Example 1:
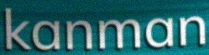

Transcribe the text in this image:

kanman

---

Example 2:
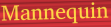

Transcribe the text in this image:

Mannequin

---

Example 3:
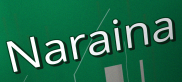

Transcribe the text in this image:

Naraina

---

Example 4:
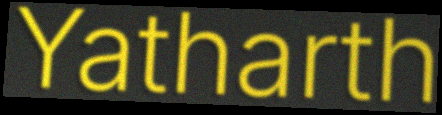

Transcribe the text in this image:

Yatharth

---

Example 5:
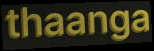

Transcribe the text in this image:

thaanga